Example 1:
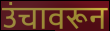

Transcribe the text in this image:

उंचावरून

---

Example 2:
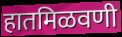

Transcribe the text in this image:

हातमिळवणी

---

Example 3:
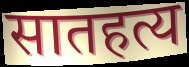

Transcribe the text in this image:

सातहत्य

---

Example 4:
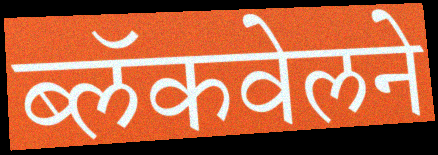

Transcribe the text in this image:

ब्लॅकवेलने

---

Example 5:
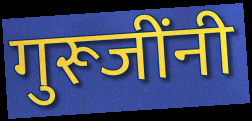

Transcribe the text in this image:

गुरूजींनी